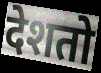
देशतो